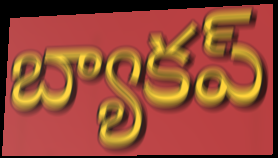
బ్యాకప్